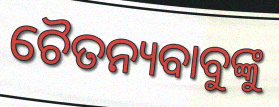
ଚୈତନ୍ୟବାବୁଙ୍କୁ